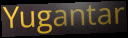
Yugantar